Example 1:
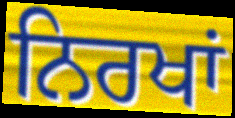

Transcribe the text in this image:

ਨਿਰਖਾਂ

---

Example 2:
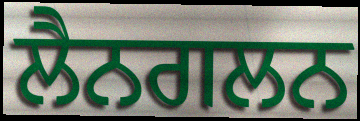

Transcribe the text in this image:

ਲੈਨਗਲਨ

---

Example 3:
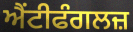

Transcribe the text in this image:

ਐਂਟੀਫੰਗਲਜ਼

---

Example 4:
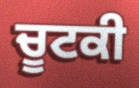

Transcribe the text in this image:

ਚੂਟਕੀ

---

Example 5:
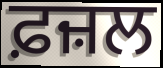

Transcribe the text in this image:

ਫ਼ਜ਼ਲ